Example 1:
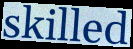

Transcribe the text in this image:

skilled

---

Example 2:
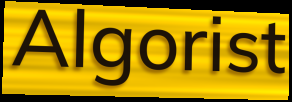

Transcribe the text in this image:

Algorist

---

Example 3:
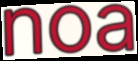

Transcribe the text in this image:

noa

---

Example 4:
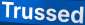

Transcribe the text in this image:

Trussed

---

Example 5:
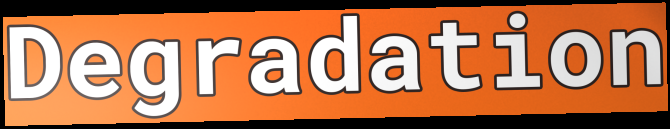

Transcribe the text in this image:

Degradation